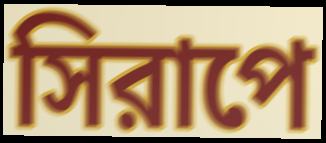
সিরাপে